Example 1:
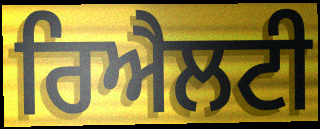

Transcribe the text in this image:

ਰਿਐਲਟੀ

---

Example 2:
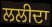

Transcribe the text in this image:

ਲਲੀਦਾ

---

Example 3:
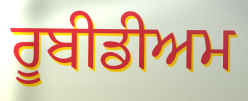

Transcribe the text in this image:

ਰੂਬੀਡੀਅਮ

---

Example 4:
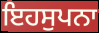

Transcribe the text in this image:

ਇਹਸੁਪਨਾ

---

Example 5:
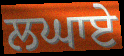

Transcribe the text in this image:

ਲਘਾਏ